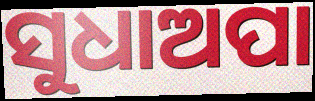
ସୁଧାଅପା